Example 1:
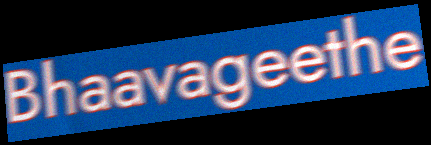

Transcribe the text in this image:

Bhaavageethe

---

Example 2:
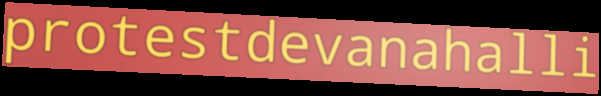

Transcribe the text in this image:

protestdevanahalli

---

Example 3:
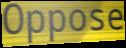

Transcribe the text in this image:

Oppose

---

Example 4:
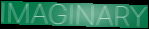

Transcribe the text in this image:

IMAGINARY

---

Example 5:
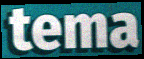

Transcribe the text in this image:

tema